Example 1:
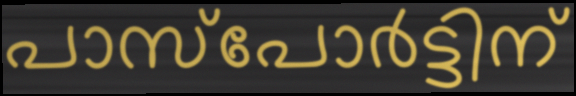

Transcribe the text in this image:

പാസ്പോർട്ടിന്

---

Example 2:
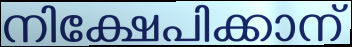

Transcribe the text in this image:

നിക്ഷേപിക്കാന്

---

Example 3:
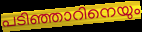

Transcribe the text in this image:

പടിഞ്ഞാറിനെയും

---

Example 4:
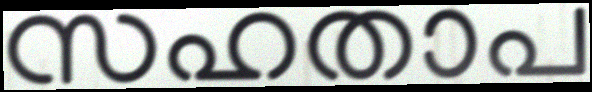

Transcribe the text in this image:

സഹതാപ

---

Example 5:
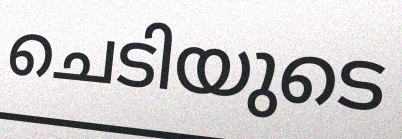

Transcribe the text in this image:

ചെടിയുടെ